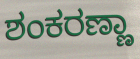
ಶಂಕರಣ್ಣಾ